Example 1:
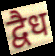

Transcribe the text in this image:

द्वैध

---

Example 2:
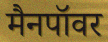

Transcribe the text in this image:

मैनपॉवर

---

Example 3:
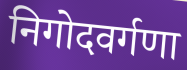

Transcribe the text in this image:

निगोदवर्गणा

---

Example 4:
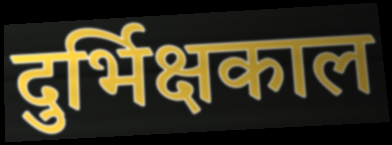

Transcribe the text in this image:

दुर्भिक्षकाल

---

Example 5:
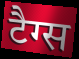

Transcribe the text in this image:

टैग्स